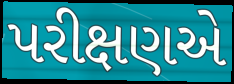
પરીક્ષણએ